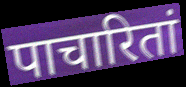
पाचारितां